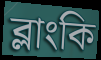
ব্লাংকি